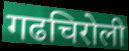
गढचिरोली